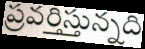
ప్రవర్తిస్తున్నది